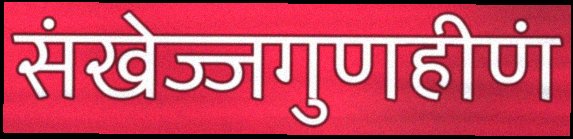
संखेज्जगुणहीणं